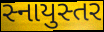
સ્નાયુસ્તર